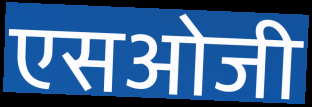
एसओजी